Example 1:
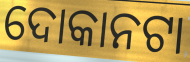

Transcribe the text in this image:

ଦୋକାନଟା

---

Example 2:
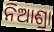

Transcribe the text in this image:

ନିଆଶ୍ରା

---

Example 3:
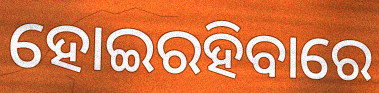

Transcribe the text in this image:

ହୋଇରହିବାରେ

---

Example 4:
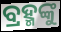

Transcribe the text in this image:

ବ୍ରହ୍ମଙ୍କୁ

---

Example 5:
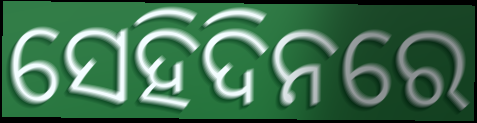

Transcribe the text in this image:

ସେହିଦିନରେ